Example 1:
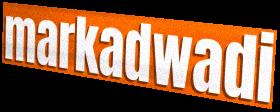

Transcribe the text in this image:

markadwadi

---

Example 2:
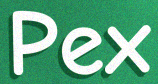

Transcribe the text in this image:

Pex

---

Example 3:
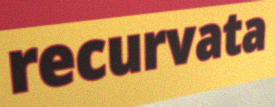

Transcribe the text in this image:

recurvata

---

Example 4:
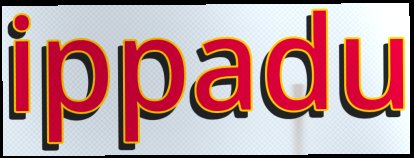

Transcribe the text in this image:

ippadu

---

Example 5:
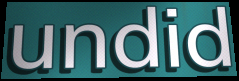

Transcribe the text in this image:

undid